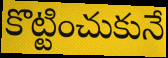
కొట్టించుకునే